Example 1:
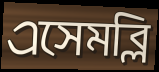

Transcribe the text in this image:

এসেমব্লি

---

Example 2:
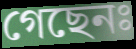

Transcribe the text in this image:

গেছেনঃ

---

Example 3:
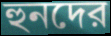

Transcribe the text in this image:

হুনদের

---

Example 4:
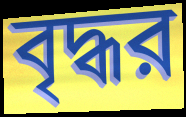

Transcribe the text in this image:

বৃদ্ধর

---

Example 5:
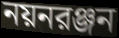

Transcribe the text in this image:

নয়নরঞ্জন